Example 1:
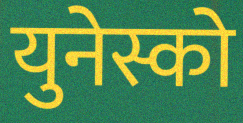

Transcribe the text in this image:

युनेस्को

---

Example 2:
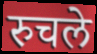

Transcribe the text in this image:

रुचले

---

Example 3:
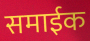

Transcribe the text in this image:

समाईक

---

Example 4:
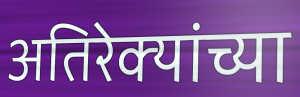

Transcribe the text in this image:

अतिरेक्‍यांच्या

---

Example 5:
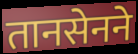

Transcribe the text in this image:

तानसेनने